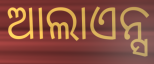
ଆଲାଏନ୍ସ